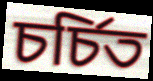
চর্চিত